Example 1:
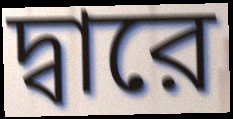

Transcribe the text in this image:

দ্বারে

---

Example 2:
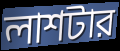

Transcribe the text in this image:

লাশটার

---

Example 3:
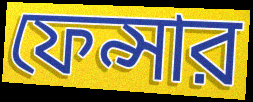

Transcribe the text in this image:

ফেন্সার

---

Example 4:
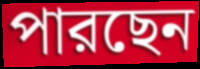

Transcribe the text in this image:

পারছেন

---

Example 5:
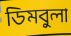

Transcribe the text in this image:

ডিমবুলা